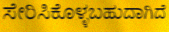
ಸೇರಿಸಿಕೊಳ್ಳಬಹುದಾಗಿದೆ